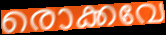
രൊക്കവേ